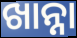
ଖାନ୍ନା